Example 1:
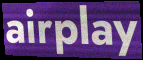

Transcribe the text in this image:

airplay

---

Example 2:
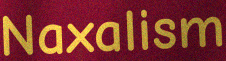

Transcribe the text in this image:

Naxalism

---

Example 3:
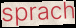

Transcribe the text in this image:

sprach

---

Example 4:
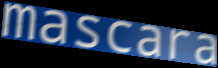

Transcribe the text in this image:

mascara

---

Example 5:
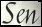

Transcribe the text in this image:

Sen